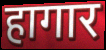
हागार